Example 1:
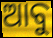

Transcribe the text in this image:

ଆବୁ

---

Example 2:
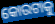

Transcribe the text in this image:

କୋଉଟାକୁ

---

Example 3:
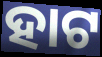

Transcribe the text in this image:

ହାଟ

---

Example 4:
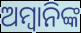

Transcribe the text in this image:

ଅମ୍ବାନିଙ୍କ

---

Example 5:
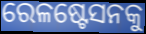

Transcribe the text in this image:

ରେଳଷ୍ଟେସନକୁ